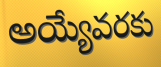
అయ్యేవరకు